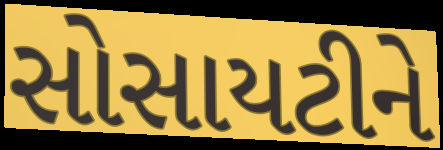
સોસાયટીને